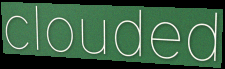
clouded